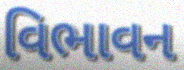
વિભાવન